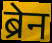
ब्रेन